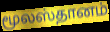
மூலஸ்தானம்